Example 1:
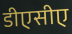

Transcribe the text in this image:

डीएसीए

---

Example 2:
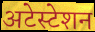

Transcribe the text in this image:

अटेस्टेशन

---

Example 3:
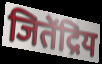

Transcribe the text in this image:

जितेंद्रिय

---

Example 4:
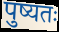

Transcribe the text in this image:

पुष्यतः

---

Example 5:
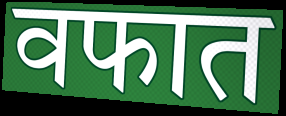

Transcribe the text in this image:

वफात